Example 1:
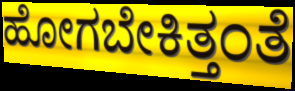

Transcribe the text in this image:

ಹೋಗಬೇಕಿತ್ತಂತೆ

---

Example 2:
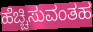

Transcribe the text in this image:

ಹೆಚ್ಚಿಸುವಂತಹ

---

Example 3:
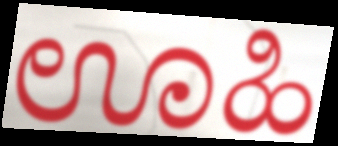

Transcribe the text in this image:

ಊಹಿ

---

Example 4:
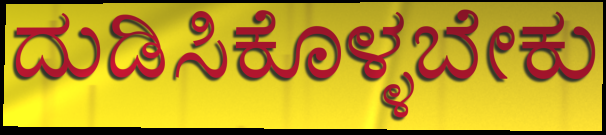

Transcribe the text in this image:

ದುಡಿಸಿಕೊಳ್ಳಬೇಕು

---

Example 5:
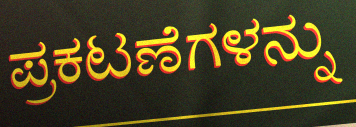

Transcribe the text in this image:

ಪ್ರಕಟಣೆಗಳನ್ನು